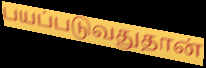
பயப்படுவதுதான்